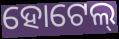
ହୋଟେଲ୍